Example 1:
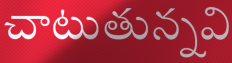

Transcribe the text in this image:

చాటుతున్నవి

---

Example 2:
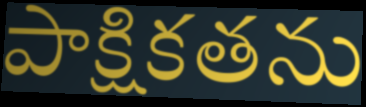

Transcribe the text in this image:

పాక్షికతను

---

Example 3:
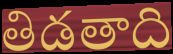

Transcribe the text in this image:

తిడతాది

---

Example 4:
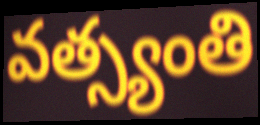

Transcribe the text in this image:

వత్స్యంతి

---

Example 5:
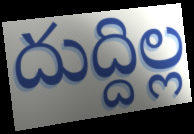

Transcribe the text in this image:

దుద్దిల్ల